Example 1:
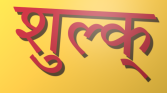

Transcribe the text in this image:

शुल्क्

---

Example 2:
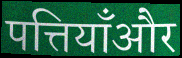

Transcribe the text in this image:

पत्तियाँऔर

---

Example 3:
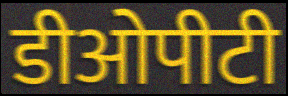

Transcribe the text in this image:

डीओपीटी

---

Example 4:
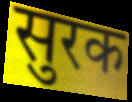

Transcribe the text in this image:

सुरक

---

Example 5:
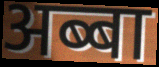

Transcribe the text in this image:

अब्बा